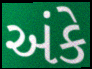
અંકે